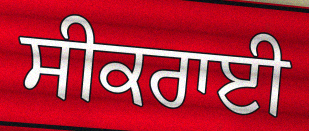
ਸੀਕਰਾਈ